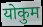
योकुम